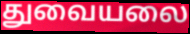
துவையலை